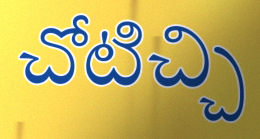
చోటిచ్చి